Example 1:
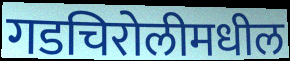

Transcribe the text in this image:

गडचिरोलीमधील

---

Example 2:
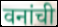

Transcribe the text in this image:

वनांची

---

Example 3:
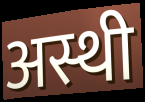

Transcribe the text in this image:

अस्थी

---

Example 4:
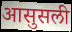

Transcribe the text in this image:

आसुसली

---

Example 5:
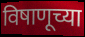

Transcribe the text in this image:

विषाणूच्या